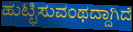
ಹುಟ್ಟಿಸುವಂಥದ್ದಾಗಿದೆ